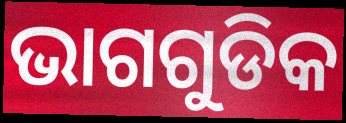
ଭାଗଗୁଡିକ